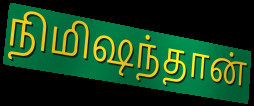
நிமிஷந்தான்